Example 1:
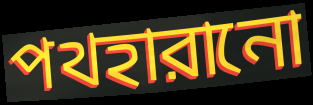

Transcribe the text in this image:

পথহারানো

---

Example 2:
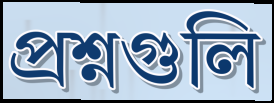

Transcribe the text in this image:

প্রশ্নগুলি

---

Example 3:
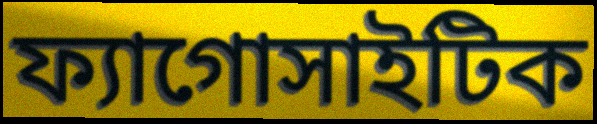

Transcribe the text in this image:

ফ্যাগোসাইটিক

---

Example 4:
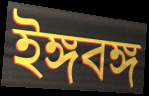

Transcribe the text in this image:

ইঙ্গবঙ্গ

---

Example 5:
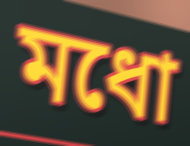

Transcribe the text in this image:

মধো